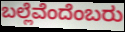
ಬಲ್ಲೆವೆಂದೆಂಬರು